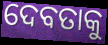
ଦେବତାକୁ